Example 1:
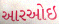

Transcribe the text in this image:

આરઓઇ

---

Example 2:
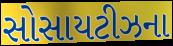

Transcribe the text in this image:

સોસાયટીઝના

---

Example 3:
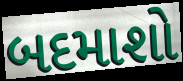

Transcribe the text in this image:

બદમાશો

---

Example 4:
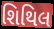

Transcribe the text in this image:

શિથિલ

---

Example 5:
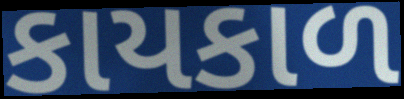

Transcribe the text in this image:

કાયકાળ